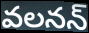
వలనన్